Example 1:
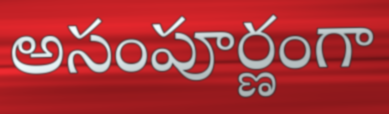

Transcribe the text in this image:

అసంపూర్ణంగా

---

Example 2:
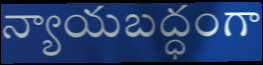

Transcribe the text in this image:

న్యాయబద్ధంగా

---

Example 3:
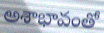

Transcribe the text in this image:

అశాభావంతో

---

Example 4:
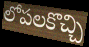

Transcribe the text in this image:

లోపలకొచ్చి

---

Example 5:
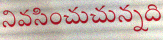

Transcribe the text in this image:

నివసించుచున్నది